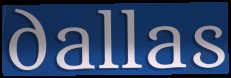
dallas